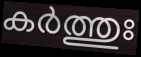
കർത്തുഃ